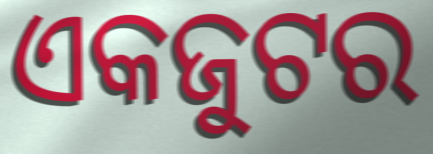
ଏକଜୁଟର